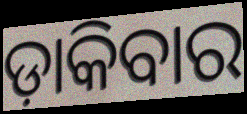
ଡ଼ାକିବାର